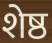
शेष्ठ